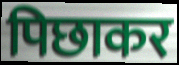
पिछाकर